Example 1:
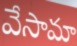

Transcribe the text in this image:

వేసామా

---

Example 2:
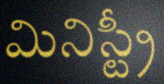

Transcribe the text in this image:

మినిస్ట్రీ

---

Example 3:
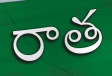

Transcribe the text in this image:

రాత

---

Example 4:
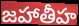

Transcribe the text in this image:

జహాతీహ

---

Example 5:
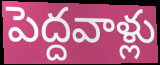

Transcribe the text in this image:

పెద్దవాళ్లు